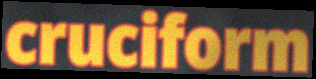
cruciform